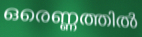
ഒരെണ്ണത്തിൽ